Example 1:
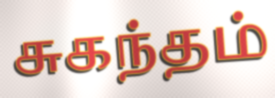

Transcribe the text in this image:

சுகந்தம்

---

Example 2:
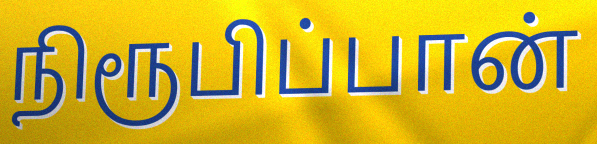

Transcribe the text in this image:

நிரூபிப்பான்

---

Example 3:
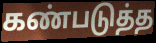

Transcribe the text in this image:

கண்படுத்த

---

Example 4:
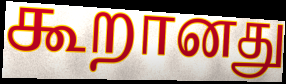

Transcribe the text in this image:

கூறானது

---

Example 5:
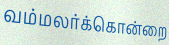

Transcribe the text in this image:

வம்மலர்க்கொன்றை